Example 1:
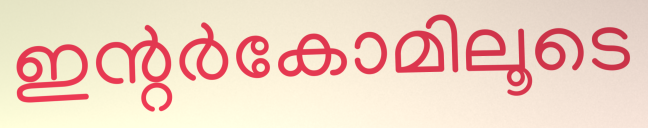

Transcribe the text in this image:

ഇന്റർകോമിലൂടെ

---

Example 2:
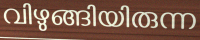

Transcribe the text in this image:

വിഴുങ്ങിയിരുന്ന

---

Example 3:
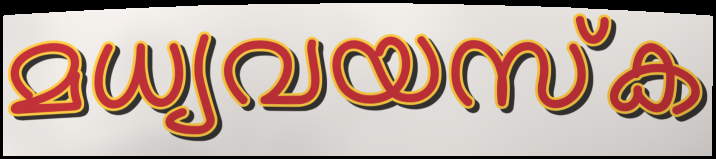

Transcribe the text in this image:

മധ്യവയസ്ക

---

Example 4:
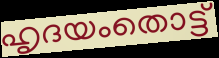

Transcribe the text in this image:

ഹൃദയംതൊട്ട്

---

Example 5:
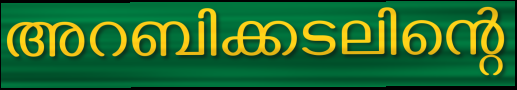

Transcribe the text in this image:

അറബിക്കടലിന്റെ